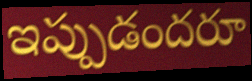
ఇప్పుడందరూ